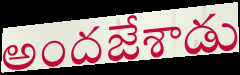
అందజేశాడు